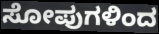
ಸೋಪುಗಳಿಂದ